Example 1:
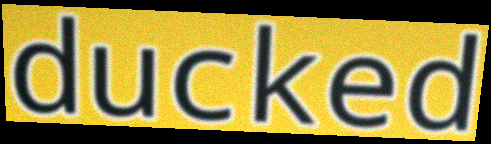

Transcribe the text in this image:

ducked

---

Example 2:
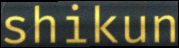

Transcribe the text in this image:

shikun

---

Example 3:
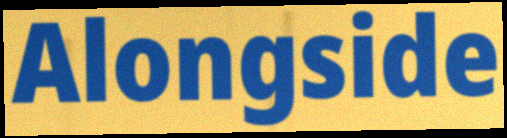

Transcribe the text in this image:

Alongside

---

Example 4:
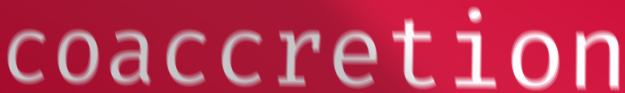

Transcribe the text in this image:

coaccretion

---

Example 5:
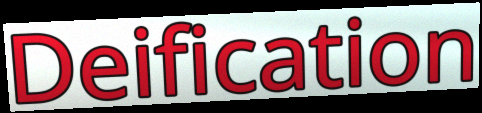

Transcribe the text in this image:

Deification